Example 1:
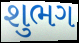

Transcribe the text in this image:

શુભગ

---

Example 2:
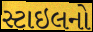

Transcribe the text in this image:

સ્ટાઇલનો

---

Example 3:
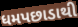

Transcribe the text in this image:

ધમપછાડાથી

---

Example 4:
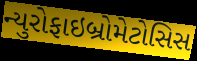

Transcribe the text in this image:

ન્યુરોફાઇબ્રોમેટોસિસ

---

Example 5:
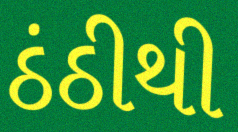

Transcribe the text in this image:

ઠંઠીથી